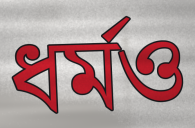
ধর্মও